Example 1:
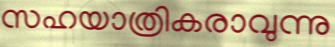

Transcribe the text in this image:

സഹയാത്രികരാവുന്നു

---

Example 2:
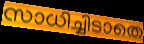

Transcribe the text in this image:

സാധിച്ചിടാതെ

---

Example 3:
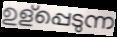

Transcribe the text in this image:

ഉള്പ്പെടുന്ന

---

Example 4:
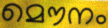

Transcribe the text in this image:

മൌനം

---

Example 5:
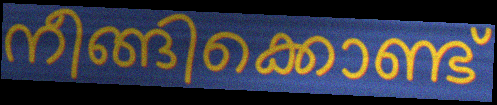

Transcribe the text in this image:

നീങ്ങിക്കൊണ്ട്